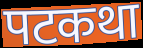
पटकथा